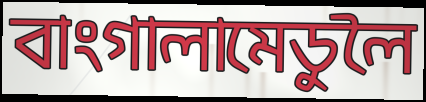
বাংগালামেডুলৈ